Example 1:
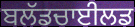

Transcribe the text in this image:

ਬਲੱਡਚਾਈਲਡ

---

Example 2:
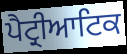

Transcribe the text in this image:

ਪੈਟ੍ਰੀਆਟਿਕ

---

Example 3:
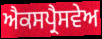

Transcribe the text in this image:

ਐਕਸਪ੍ਰੈਸਵੇਅ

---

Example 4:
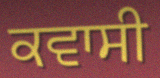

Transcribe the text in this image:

ਕਵਾਸੀ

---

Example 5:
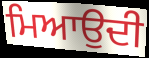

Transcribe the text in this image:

ਮਿਆਉਦੀ